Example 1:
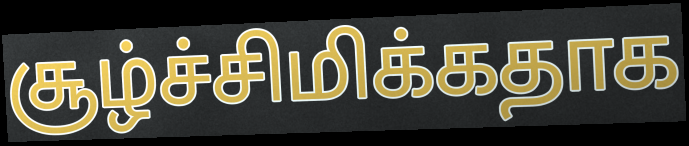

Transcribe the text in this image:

சூழ்ச்சிமிக்கதாக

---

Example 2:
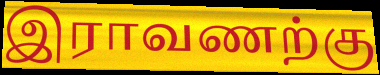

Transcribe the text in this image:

இராவணற்கு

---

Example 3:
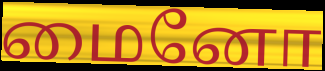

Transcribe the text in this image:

மைனோ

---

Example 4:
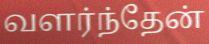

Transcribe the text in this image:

வளர்ந்தேன்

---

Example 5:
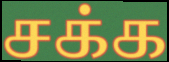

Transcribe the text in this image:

சக்க